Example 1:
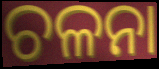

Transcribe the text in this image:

ଚଳନା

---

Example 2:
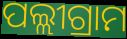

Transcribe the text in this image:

ପଲ୍ଲୀଗ୍ରାମ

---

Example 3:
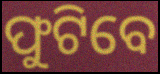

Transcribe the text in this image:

ଫୁଟିବେ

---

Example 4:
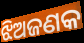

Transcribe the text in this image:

ଝିଅଜଣକ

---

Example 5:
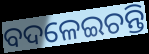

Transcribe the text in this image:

ବଦଳେଇଚନ୍ତି